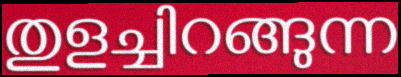
തുളച്ചിറങ്ങുന്ന